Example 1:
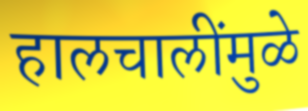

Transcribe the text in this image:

हालचालींमुळे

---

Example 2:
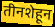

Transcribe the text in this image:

तीनशेहून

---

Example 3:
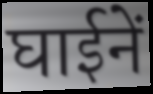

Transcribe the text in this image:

घाईनें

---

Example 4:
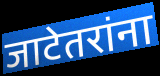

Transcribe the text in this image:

जाटेतरांना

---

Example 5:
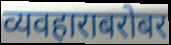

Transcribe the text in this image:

व्यवहाराबरोबर